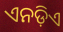
ଏନଡ଼ିଏ